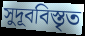
সুদূববিস্তৃত